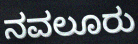
ನವಲೂರು